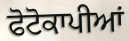
ਫੋਟੋਕਾਪੀਆਂ